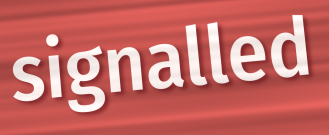
signalled